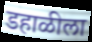
डहाळीला